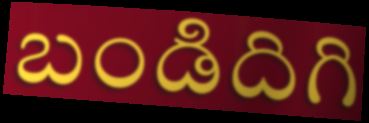
బండిదిగి